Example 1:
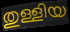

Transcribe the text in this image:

തുള്ളിയ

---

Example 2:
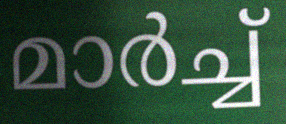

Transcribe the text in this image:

മാർച്ച്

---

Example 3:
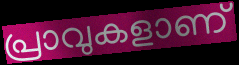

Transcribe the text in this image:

പ്രാവുകളാണ്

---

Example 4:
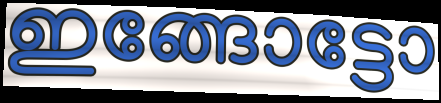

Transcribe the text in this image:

ഇങ്ങോട്ടോ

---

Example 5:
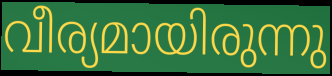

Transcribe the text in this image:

വീര്യമായിരുന്നു